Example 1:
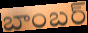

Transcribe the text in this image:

బాంబర్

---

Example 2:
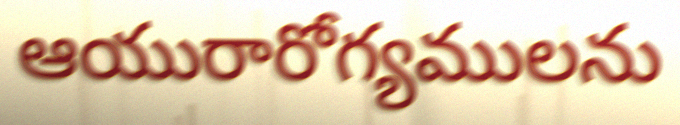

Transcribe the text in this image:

ఆయురారోగ్యములను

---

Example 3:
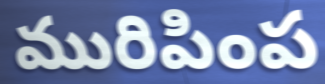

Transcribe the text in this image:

మురిపింప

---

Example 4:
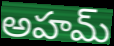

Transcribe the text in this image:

అహమ్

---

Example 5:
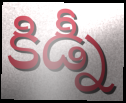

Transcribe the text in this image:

కిడ్నీ